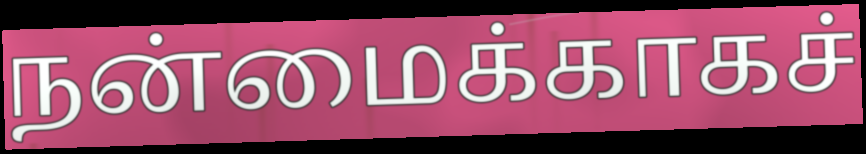
நன்மைக்காகச்